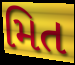
મિત